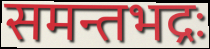
समन्तभद्रः